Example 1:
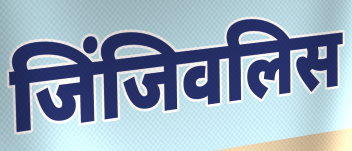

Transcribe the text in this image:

जिंजिवलिस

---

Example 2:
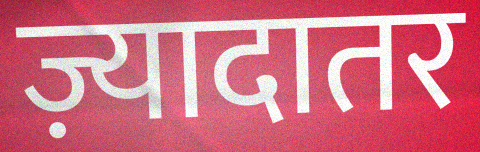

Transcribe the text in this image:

ज़्यादातर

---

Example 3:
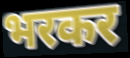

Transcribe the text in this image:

भरकर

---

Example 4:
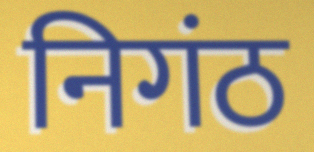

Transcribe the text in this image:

निगंठ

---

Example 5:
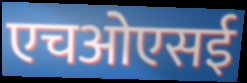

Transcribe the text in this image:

एचओएसई